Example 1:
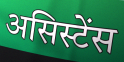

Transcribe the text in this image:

असिस्टेंस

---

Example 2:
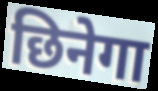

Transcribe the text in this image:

छिनेगा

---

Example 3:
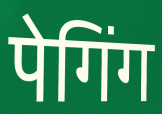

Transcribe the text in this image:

पेगिंग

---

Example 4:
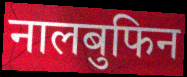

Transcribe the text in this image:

नालबुफिन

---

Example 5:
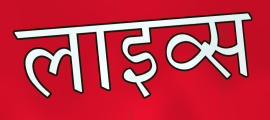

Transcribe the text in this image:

लाइव्स